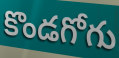
కొండగోగు